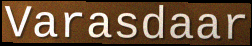
Varasdaar